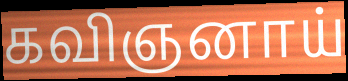
கவிஞனாய்